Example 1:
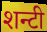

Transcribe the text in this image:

शन्टी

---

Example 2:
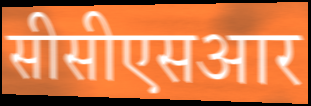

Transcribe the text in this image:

सीसीएसआर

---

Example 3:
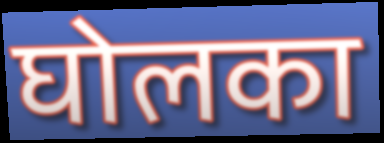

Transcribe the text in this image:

घोलका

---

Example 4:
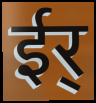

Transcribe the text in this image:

ईर्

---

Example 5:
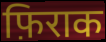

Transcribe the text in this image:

फ़िराक